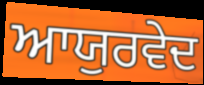
ਆਯੁਰਵੇਦ